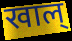
खाल्